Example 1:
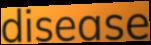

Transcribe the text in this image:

disease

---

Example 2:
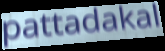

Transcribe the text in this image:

pattadakal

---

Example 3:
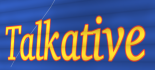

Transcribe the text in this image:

Talkative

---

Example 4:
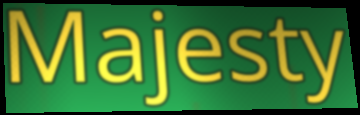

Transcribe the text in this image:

Majesty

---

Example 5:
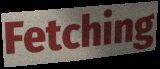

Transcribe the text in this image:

Fetching